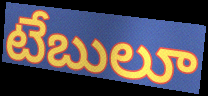
టేబులూ